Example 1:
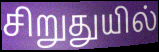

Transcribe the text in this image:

சிறுதுயில்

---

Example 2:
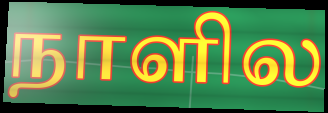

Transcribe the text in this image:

நாளில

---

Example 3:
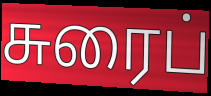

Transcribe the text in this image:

சுரைப்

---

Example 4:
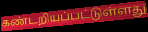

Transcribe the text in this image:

கண்டறியப்பட்டுள்ளது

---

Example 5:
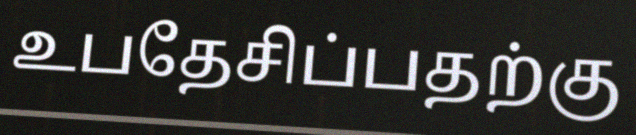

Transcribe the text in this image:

உபதேசிப்பதற்கு